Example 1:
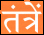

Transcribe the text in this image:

तंत्रें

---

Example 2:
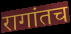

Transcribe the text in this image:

रागांतच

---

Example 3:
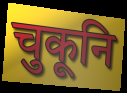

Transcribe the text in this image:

चुकूनि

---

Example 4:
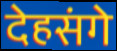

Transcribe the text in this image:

देहसंगे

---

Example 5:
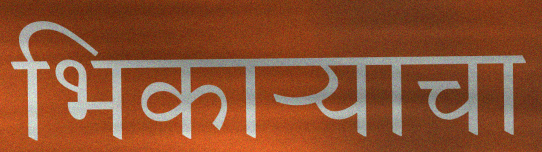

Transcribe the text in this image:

भिकाऱ्याचा